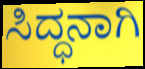
ಸಿದ್ಧನಾಗಿ